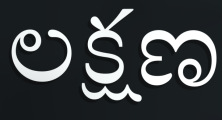
లక్షణ